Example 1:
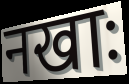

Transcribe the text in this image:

नखाः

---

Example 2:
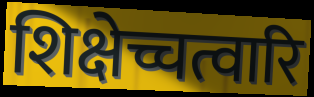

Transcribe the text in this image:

शिक्षेच्चत्वारि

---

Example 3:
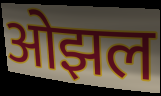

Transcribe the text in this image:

ओझल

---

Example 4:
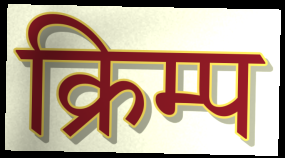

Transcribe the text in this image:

क्रिम्प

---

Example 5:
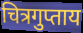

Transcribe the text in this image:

चित्रगुप्ताय